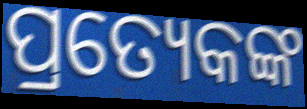
ପ୍ରତ୍ଯେକଙ୍କ